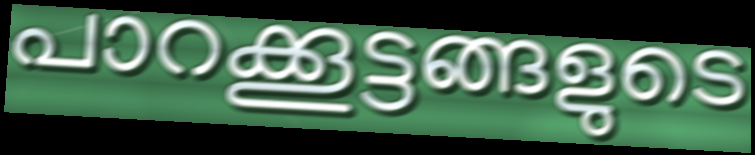
പാറക്കൂട്ടങ്ങളുടെ